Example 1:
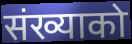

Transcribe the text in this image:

संख्याको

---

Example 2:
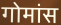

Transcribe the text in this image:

गोमांस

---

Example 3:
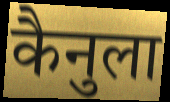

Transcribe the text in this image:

कैनुला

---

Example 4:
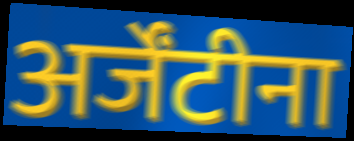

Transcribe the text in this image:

अर्जेंटीना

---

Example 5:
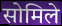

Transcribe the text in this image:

सोमिले